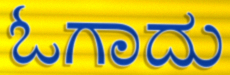
ಓಗಾದು